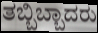
ತಬ್ಬಿಬ್ಬಾದರು